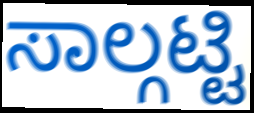
ಸಾಲ್ಗಟ್ಟಿ